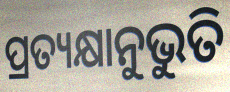
ପ୍ରତ୍ୟକ୍ଷାନୁଭୁତି